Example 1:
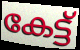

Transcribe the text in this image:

കേട്ട്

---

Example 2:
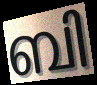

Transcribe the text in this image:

ബി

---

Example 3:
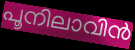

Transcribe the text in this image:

പൂനിലാവിൻ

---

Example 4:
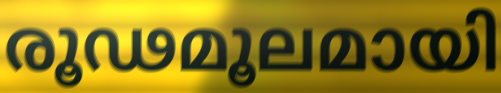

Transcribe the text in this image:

രൂഢമൂലമായി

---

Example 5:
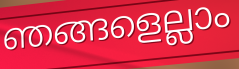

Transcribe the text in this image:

ഞങ്ങളെല്ലാം